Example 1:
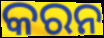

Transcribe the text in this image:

କରନ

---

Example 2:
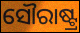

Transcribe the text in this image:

ସୌରାଷ୍ଟ୍ର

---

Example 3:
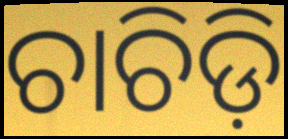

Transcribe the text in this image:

ଚାଚିଡ଼ି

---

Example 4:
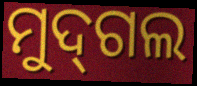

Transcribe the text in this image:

ମୁଦ୍‌ଗଲ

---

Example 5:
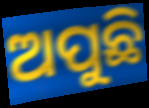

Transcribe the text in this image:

ଅପୁଛି